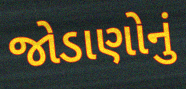
જોડાણોનું